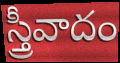
స్త్రీవాదం